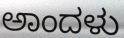
ಅಾಂದಳು